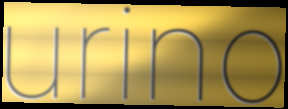
urino